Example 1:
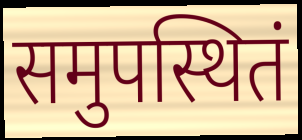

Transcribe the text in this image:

समुपस्थितं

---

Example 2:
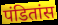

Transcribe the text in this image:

पंडितांस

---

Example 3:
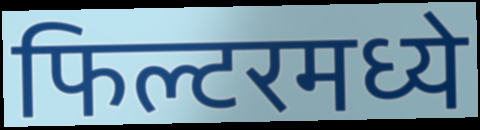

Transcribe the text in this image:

फिल्टरमध्ये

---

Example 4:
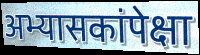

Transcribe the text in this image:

अभ्यासकांपेक्षा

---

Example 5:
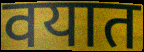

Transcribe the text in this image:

वयात